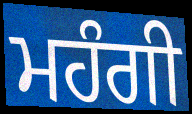
ਮਹੰਗੀ